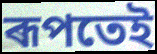
ৰূপতেই